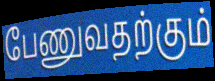
பேணுவதற்கும்